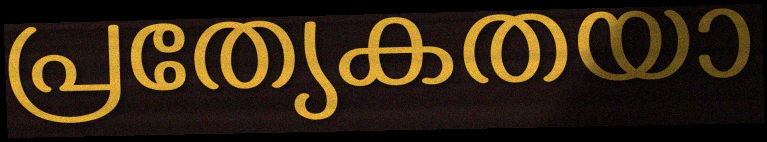
പ്രത്യേകതയാ